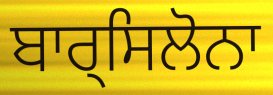
ਬਾਰ੍ਸਿਲੋਨਾ